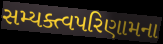
સમ્યક્ત્વપરિણામના